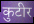
कुटीर